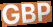
GBP